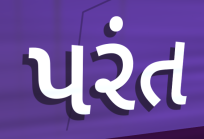
પરંત